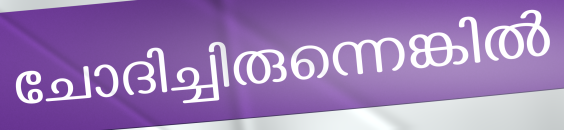
ചോദിച്ചിരുന്നെങ്കിൽ